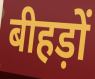
बीहड़ों